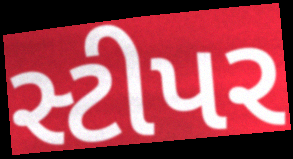
સ્ટીપર